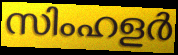
സിംഹളർ